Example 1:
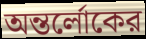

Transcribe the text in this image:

অন্তর্লোকের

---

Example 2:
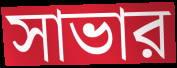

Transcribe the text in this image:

সাভার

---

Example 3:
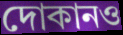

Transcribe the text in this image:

দোকানও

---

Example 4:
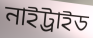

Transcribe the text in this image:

নাইট্রাইড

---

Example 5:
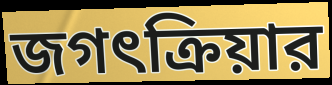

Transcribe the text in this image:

জগৎক্রিয়ার